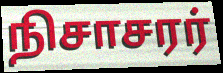
நிசாசரர்